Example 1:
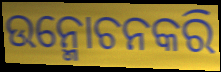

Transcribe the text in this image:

ଉନ୍ମୋଚନକରି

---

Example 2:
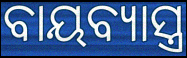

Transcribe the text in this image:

ବାୟବ୍ୟାସ୍ତ୍ର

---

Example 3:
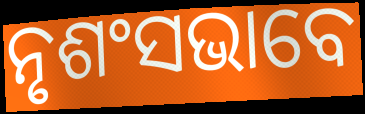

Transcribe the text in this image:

ନୃଶଂସଭାବେ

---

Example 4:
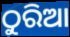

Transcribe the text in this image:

ଠୁରିଆ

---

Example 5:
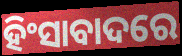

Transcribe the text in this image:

ହିଂସାବାଦରେ